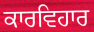
ਕਾਰਵਿਹਾਰ